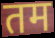
तम